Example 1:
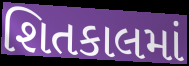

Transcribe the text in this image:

શિતકાલમાં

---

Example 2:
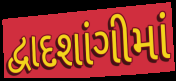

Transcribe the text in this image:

દ્વાદશાંગીમાં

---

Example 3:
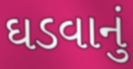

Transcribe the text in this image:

ઘડવાનું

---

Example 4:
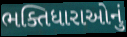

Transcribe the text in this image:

ભક્તિધારાઓનું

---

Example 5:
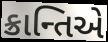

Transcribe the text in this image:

ક્રાન્તિએ